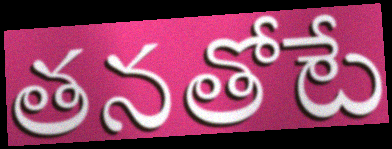
తనతోటే